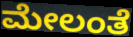
ಮೇಲಂತೆ